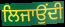
ਲਿਜਾਉਂਦੀ